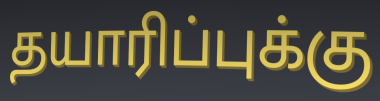
தயாரிப்புக்கு